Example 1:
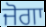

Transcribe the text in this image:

ਜੋਗਾ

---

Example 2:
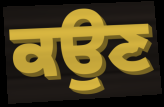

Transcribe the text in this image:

ਕਉਣ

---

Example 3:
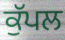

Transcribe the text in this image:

ਕੁੱਪਲ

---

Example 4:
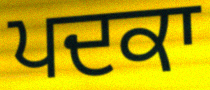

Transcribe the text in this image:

ਪਦਕਾ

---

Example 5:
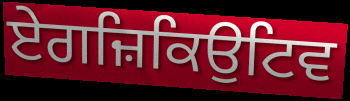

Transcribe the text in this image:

ਏਗਜ਼ਿਕਿਉਟਿਵ